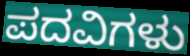
ಪದವಿಗಳು